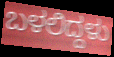
ಬಳಲಿದ್ದಳು